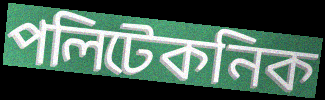
পলিটেকনিক